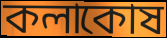
কলাকোষ